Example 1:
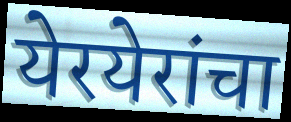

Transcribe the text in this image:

येरयेरांचा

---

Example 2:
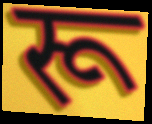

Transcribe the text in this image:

रू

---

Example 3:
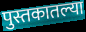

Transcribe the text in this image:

पुस्तकातल्या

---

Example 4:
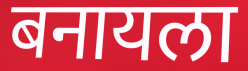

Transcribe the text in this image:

बनायला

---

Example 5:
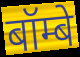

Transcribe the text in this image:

बॉम्बे